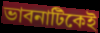
ভাবনাটিকেই